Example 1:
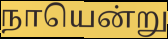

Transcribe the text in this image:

நாயென்று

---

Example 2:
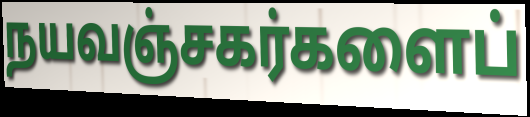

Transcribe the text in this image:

நயவஞ்சகர்களைப்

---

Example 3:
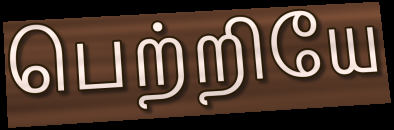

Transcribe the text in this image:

பெற்றியே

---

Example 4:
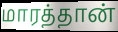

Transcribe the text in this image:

மாரத்தான்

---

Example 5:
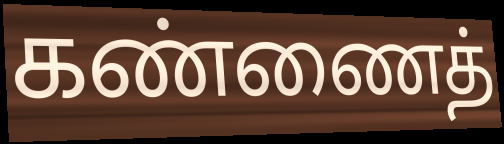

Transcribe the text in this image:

கண்ணைத்